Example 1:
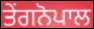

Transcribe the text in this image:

ਤੇਂਗਨੋਪਾਲ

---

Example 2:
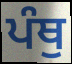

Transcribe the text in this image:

ਪੰਥੁ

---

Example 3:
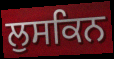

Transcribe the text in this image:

ਲੁਸਕਿਨ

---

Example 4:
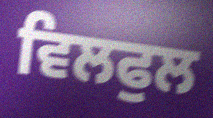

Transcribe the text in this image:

ਵਿਲਫੁਲ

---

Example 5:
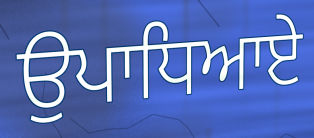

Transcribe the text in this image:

ਉਪਾਧਿਆਏ